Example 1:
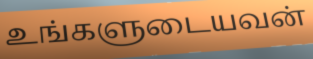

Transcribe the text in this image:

உங்களுடையவன்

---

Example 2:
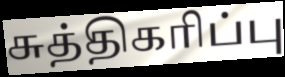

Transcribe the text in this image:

சுத்திகரிப்பு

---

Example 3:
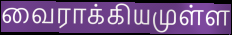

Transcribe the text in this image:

வைராக்கியமுள்ள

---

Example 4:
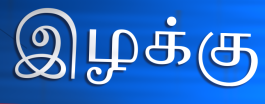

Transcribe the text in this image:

இழக்கு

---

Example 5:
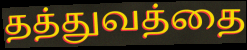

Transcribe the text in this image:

தத்துவத்தை